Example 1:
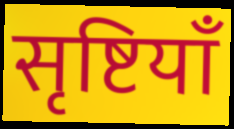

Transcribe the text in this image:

सृष्टियाँ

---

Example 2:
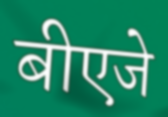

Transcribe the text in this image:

बीएजे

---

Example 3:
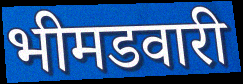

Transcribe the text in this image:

भीमडवारी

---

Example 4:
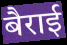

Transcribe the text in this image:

बैराई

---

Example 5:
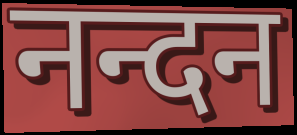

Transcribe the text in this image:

नन्‍दन